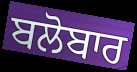
ਬਲੋਬਾਰ